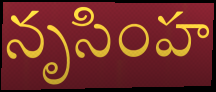
నృసింహ